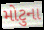
મોટુના